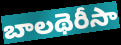
బాలథెరీసా